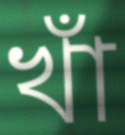
খাঁ